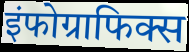
इंफोग्राफिक्स